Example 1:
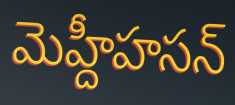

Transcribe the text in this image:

మెహ్దీహసన్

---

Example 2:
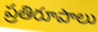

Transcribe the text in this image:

ప్రతిరూపాలు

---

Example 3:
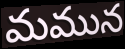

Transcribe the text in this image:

మమున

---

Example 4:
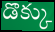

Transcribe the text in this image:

డొక్కు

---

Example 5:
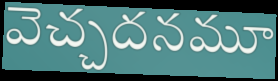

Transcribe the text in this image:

వెచ్చదనమూ